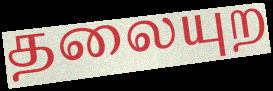
தலையுற